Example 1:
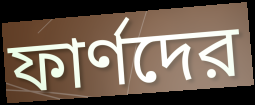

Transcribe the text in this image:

ফার্ণদের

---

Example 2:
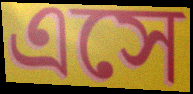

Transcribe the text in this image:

এসে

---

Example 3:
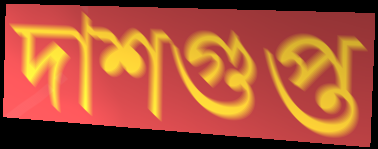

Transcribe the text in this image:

দাশগুপ্ত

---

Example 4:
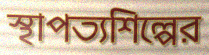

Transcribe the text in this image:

স্থাপত্যশিল্পের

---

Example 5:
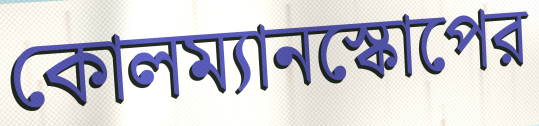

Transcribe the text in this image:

কোলম্যানস্কোপের